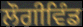
ਲੌਗੀਵਿੰਡ